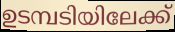
ഉടമ്പടിയിലേക്ക്